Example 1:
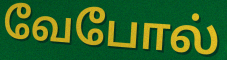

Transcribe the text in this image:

வேபோல்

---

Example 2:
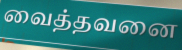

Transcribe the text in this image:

வைத்தவனை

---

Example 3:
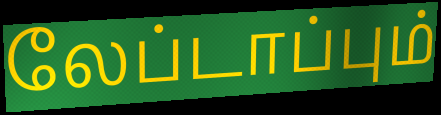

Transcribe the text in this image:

லேப்டாப்பும்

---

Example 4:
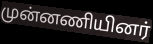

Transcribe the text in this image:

முன்னணியினர்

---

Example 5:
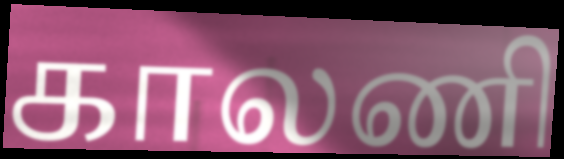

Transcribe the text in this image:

காலணி